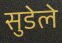
सुडेले